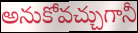
అనుకోవచ్చుగానీ